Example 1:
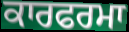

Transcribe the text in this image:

ਕਾਰਫਰਮਾ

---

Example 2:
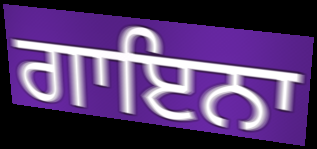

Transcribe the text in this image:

ਗਾਇਨਾ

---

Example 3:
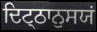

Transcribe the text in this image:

ਦਿਟ੍ਠਾਨੁਸਯਂ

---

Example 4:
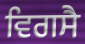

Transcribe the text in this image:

ਵਿਗਸੈ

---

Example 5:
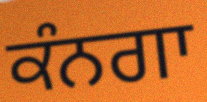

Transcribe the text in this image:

ਕੰਨਗਾ